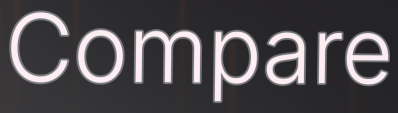
Compare